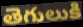
తెగులుకి